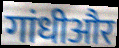
गांधीऔर